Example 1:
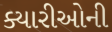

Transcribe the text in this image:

ક્યારીઓની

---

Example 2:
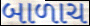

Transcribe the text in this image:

બાળાચ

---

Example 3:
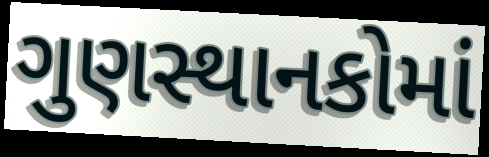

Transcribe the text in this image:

ગુણસ્થાનકોમાં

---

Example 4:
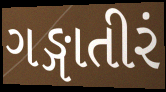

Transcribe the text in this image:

ગઙ્ગાતીરં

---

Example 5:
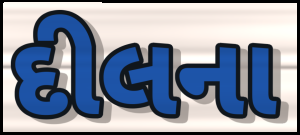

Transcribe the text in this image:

દીલના